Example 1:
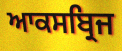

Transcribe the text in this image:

ਆਕਸਬ੍ਰਿਜ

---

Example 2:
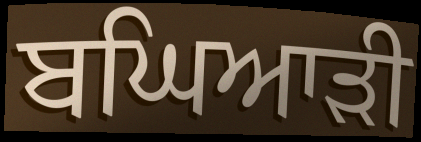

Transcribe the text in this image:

ਬਘਿਆੜੀ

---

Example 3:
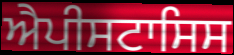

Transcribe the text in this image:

ਐਪੀਸਟਾਸਿਸ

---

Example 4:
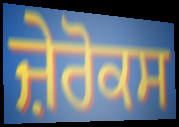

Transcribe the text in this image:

ਜ਼ੇਰੋਕਸ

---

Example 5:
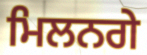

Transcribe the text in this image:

ਮਿਲਨਗੇ